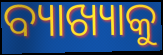
ବ୍ୟାଖ୍ୟାକୁ